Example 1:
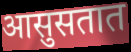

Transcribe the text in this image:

आसुसतात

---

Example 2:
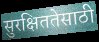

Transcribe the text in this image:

सुरक्षिततेसाठी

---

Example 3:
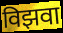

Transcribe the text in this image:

विझवा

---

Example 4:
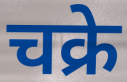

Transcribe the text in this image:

चक्रे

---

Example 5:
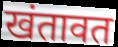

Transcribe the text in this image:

खंतावत